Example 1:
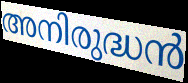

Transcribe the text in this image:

അനിരുദ്ധൻ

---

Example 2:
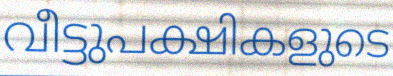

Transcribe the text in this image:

വീട്ടുപക്ഷികളുടെ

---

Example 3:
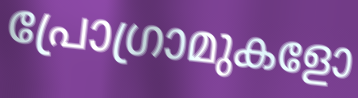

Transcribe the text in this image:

പ്രോഗ്രാമുകളോ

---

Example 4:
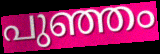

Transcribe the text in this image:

പുഞ്ഞം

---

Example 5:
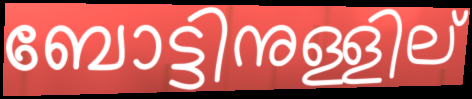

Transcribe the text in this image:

ബോട്ടിനുള്ളില്